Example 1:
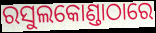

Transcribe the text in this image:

ରସୁଲକୋଣ୍ଡାଠାରେ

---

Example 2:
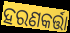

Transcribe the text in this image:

ହରଣକର୍ତ୍ତା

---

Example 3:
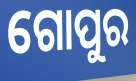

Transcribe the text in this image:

ଗୋପୁର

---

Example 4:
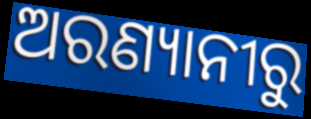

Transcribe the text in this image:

ଅରଣ୍ୟାନୀରୁ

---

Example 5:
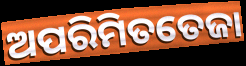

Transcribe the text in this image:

ଅପରିମିତତେଜା